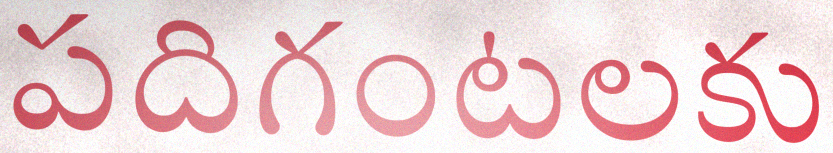
పదిగంటలకు